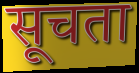
सूचता